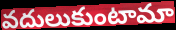
వదులుకుంటామా